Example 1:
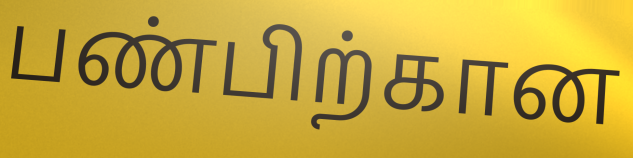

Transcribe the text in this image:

பண்பிற்கான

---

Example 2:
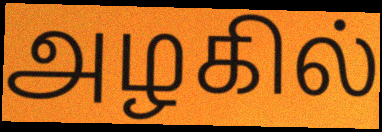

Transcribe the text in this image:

அழகில்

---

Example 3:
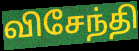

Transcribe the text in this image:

விசேந்தி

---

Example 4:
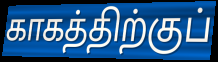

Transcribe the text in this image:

காகத்திற்குப்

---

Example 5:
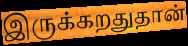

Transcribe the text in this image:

இருக்கறதுதான்